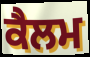
ਕੈਲਮ